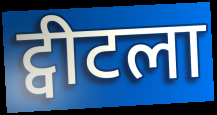
ट्वीटला